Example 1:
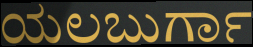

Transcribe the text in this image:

ಯಲಬುರ್ಗಾ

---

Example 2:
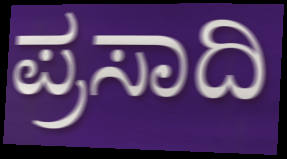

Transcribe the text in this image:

ಪ್ರಸಾದಿ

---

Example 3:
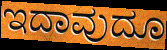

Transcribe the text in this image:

ಇದಾವುದೂ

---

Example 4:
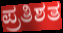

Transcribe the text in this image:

ಪ್ರತಿಶತ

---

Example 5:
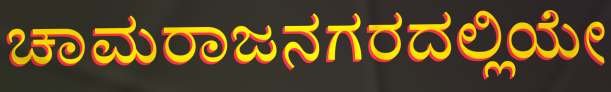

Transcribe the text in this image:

ಚಾಮರಾಜನಗರದಲ್ಲಿಯೇ